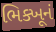
ભિક્ખૂનં